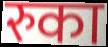
रुका